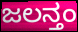
ಜಲನ್ತಂ